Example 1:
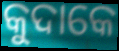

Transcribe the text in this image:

କୁଦାକେ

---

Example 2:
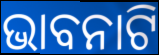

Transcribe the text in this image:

ଭାବନାଟି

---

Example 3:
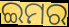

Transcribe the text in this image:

ଇମର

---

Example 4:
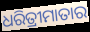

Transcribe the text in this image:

ଧରିତ୍ରୀମାତାର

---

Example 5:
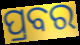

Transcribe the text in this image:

ପ୍ରବର